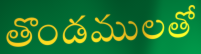
తొండములతో